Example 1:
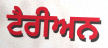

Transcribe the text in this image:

ਟੈਰੀਅਨ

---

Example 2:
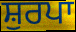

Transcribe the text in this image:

ਸ਼ੁਰਪਾ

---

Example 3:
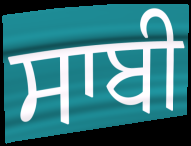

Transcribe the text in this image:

ਸਾਬੀ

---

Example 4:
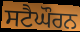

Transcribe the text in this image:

ਸਟੈਘੌਰਨ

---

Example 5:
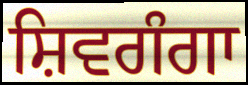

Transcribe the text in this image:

ਸ਼ਿਵਗੰਗਾ